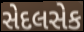
સેદલસેક